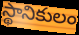
స్థానికులం